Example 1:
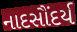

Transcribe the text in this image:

નાદસૌંદર્ય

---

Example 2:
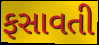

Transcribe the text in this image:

ફસાવતી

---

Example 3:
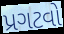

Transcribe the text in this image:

પ્રગટવો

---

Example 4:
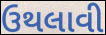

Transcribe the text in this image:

ઉથલાવી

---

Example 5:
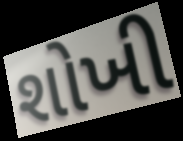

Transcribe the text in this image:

શોખી